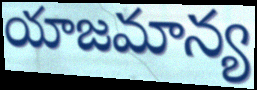
యాజమాన్య